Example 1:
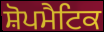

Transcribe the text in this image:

ਸ਼ੋਪਮੈਟਿਕ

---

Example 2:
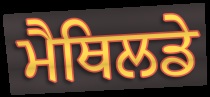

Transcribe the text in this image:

ਮੈਥਿਲਡੇ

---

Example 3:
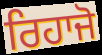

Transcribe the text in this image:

ਰਿਹਾਜੋ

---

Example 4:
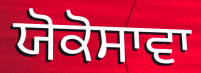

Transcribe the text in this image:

ਯੋਕੋਸਾਵਾ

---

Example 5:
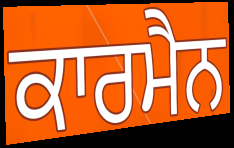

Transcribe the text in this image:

ਕਾਰਮੈਨ